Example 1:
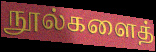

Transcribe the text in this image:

நூல்களைத்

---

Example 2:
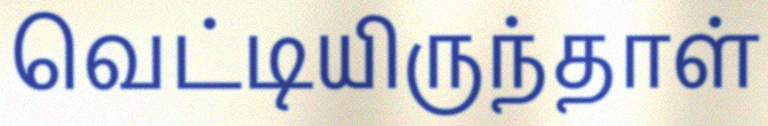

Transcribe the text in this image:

வெட்டியிருந்தாள்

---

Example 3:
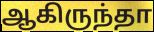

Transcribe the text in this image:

ஆகிருந்தா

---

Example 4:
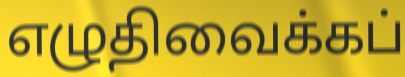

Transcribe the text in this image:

எழுதிவைக்கப்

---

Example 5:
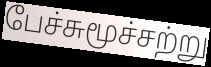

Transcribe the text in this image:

பேச்சுமூச்சற்று